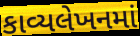
કાવ્યલેખનમાં